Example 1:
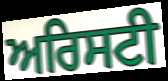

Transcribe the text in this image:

ਅਰਿਸਟੀ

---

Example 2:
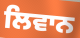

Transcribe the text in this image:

ਲਿਵਾਨ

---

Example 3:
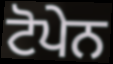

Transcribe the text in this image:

ਟੋਪੇਨ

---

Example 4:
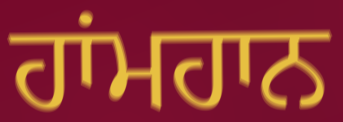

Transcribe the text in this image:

ਹਾਂਮਹਾਨ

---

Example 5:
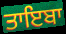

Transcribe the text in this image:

ਤਾਇਬਾ